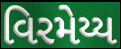
વિરમેય્ય